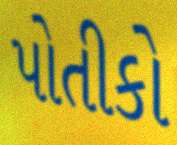
પોતીકો